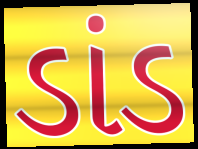
ડાંડ